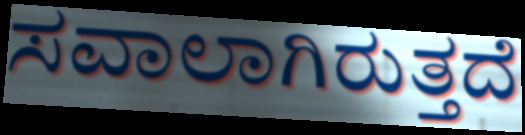
ಸವಾಲಾಗಿರುತ್ತದೆ